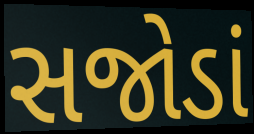
સજોડાં